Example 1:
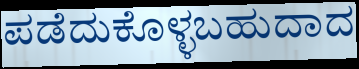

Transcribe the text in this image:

ಪಡೆದುಕೊಳ್ಳಬಹುದಾದ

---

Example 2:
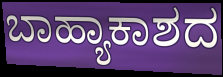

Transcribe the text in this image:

ಬಾಹ್ಯಾಕಾಶದ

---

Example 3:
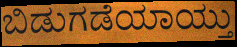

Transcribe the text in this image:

ಬಿಡುಗಡೆಯಾಯ್ತು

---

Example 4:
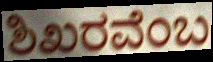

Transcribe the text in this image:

ಶಿಖರವೆಂಬ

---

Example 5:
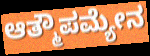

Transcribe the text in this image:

ಆತ್ಮೌಪಮ್ಯೇನ